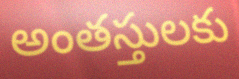
అంతస్తులకు